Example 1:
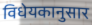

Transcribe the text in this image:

विधेयकानुसार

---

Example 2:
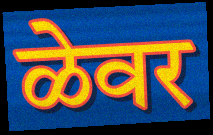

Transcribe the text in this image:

ळेवर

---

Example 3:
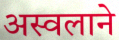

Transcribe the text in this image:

अस्वलाने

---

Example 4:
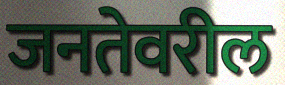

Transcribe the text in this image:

जनतेवरील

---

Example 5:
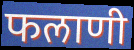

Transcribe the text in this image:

फलाणी